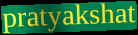
pratyakshat